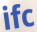
ifc